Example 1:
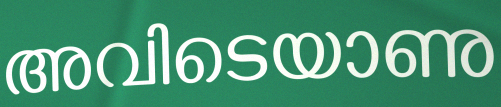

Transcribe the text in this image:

അവിടെയാണു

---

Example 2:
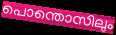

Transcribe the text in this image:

പൊന്തൊസിലും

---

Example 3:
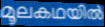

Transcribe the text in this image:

മൂലകഥയിൽ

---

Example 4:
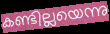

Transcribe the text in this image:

കണ്ടില്ലയെന്നു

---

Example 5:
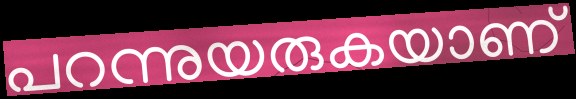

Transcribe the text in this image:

പറന്നുയരുകയാണ്